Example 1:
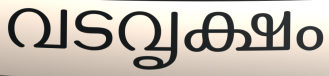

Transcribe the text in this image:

വടവൃക്ഷം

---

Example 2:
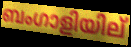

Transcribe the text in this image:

ബംഗാളിയില്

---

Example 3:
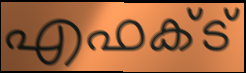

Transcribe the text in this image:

എഫക്ട്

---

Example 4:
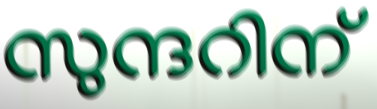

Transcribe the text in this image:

സുന്ദറിന്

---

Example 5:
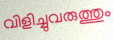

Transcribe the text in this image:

വിളിച്ചുവരുത്തും